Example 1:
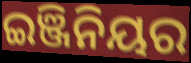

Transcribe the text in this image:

ଇଞ୍ଜିନିୟର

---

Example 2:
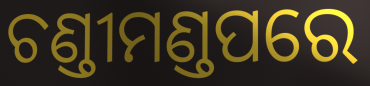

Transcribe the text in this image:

ଚଣ୍ଡୀମଣ୍ଡପରେ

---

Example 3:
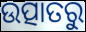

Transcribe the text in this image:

ଉତ୍ପାତରୁ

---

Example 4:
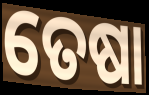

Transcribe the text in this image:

ତେଷା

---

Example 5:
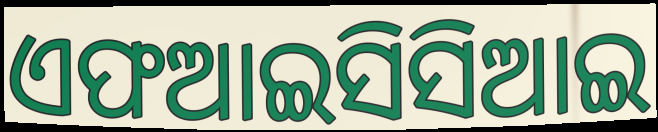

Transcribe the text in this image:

ଏଫଆଇସିସିଆଇ